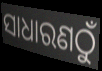
ସାଧାରଣଠୁଁ